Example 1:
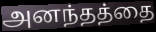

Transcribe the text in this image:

அனந்தத்தை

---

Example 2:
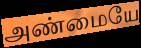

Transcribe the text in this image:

அண்மையே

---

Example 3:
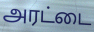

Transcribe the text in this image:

அரட்டை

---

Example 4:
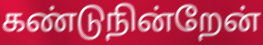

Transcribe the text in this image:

கண்டுநின்றேன்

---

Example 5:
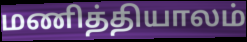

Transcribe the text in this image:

மணித்தியாலம்